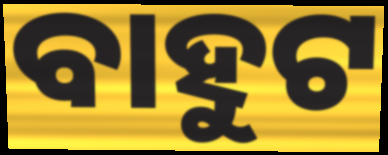
ବାହୁଟ